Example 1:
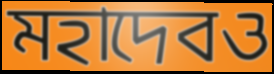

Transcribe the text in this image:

মহাদেবও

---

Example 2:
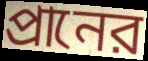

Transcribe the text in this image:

প্রানের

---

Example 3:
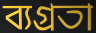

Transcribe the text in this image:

ব্যগ্রতা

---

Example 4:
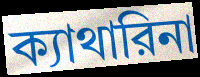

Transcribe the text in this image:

ক্যাথারিনা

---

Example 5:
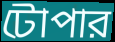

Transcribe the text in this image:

টোপার